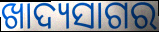
ଖାଦ୍ୟସାଗର